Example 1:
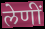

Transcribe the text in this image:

लेणीं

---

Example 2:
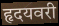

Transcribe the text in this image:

हृदयवरी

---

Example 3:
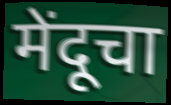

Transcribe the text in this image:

मेंदूचा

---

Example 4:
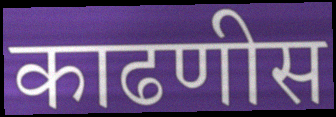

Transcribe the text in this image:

काढणीस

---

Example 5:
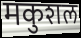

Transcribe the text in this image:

मकुशल